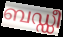
ബഡ്ഡീ